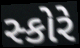
સ્કોરે